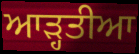
ਆੜ੍ਹਤੀਆ